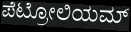
ಪೆಟ್ರೋಲಿಯಮ್